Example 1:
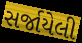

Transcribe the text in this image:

સર્જાયેલી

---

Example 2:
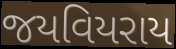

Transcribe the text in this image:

જયવિયરાય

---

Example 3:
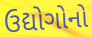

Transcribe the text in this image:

ઉદ્યોગોનો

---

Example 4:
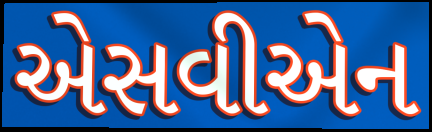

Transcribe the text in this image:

એસવીએન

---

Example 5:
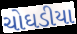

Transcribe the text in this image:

ચોઘડીયા